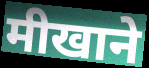
मीखाने